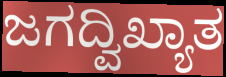
ಜಗದ್ವಿಖ್ಯಾತ